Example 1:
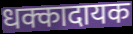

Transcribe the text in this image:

धक्‍कादायक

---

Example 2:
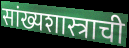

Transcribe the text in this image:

सांख्यशास्त्राची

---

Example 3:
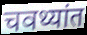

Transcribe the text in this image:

चवथ्यांत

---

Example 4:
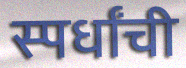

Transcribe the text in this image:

स्पर्धांची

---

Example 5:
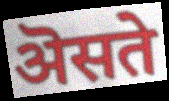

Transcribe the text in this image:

ऄसते